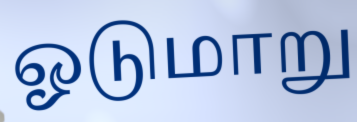
ஓடுமாறு